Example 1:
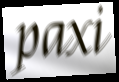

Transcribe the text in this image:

paxi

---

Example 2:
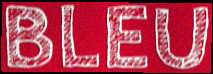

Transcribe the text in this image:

BLEU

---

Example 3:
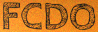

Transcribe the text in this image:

FCDO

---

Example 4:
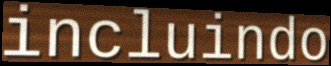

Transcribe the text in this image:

incluindo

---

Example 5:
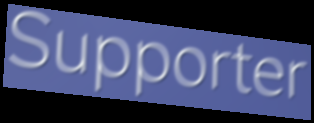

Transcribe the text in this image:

Supporter